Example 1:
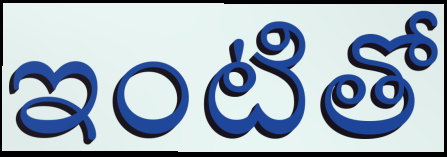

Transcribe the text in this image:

ఇంటితో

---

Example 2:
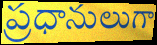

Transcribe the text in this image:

ప్రధానులుగా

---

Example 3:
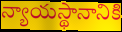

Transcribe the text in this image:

న్యాయస్థానానికి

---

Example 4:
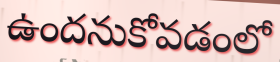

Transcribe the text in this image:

ఉందనుకోవడంలో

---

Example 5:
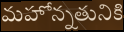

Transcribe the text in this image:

మహోన్నతునికి